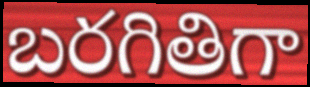
బరగితిగా